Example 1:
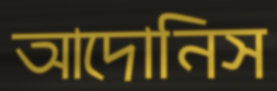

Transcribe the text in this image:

আদোনিস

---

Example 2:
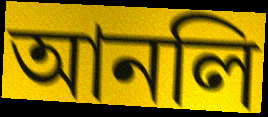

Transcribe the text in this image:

আনলি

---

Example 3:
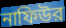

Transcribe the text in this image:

নাফিউর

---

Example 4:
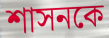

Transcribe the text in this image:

শাসনকে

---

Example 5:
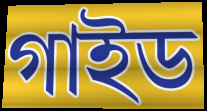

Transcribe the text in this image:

গাইড